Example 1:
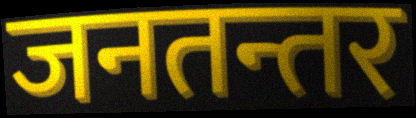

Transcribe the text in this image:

जनतन्तर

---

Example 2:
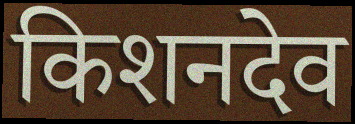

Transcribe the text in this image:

किशनदेव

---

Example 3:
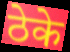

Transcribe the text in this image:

ठेके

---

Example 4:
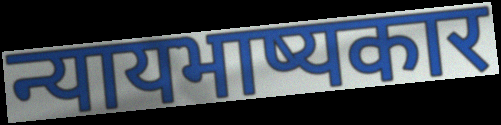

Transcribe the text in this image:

न्यायभाष्यकार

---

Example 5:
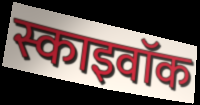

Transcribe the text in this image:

स्काइवॉक